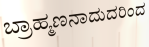
ಬ್ರಾಹ್ಮಣನಾದುದರಿಂದ